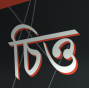
চিত্ত